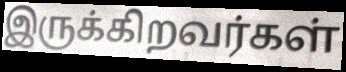
இருக்கிறவர்கள்